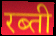
रब्ती